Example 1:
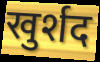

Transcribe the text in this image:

खुर्शद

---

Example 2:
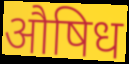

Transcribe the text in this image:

औषिध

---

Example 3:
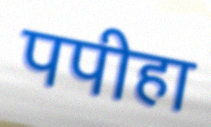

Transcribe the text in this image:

पपीहा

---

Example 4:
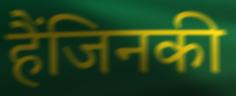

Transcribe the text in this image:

हैंजिनकी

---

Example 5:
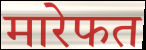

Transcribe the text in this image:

मारेफत